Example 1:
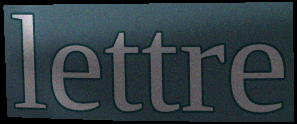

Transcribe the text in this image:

lettre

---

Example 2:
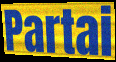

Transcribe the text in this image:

Partai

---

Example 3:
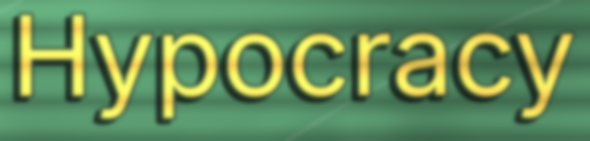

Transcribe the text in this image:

Hypocracy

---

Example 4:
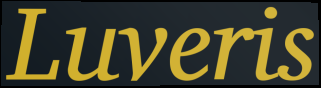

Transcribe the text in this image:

Luveris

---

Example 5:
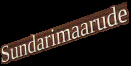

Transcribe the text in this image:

Sundarimaarude